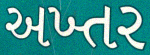
અખ્તર